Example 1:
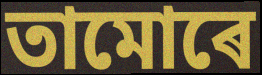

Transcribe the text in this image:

তামোৰে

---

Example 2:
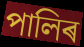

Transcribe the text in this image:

পালিৰ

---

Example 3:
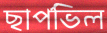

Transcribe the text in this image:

ছাৰ্পভিল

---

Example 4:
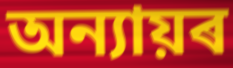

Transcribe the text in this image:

অন্যায়ৰ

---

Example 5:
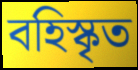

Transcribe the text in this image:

বহিস্কৃত